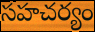
సహచర్యం